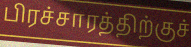
பிரச்சாரத்திற்குச்